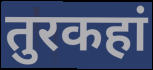
तुरकहां